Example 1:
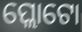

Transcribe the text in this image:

ପ୍ଲୋଟୋ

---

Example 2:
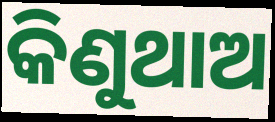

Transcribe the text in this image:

କିଣୁଥାଅ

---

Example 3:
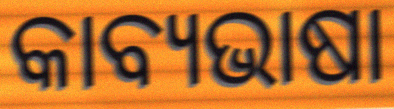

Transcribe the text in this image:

କାବ୍ୟଭାଷା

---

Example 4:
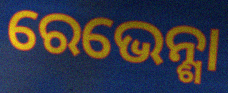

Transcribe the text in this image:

ରେଭେନ୍ଶା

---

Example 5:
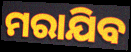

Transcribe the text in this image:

ମରାଯିବ